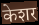
केशर